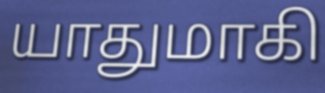
யாதுமாகி